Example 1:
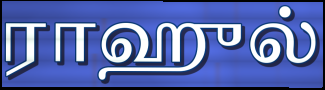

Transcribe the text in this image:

ராஹுல்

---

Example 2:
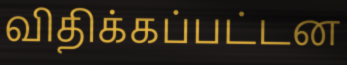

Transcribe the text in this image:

விதிக்கப்பட்டன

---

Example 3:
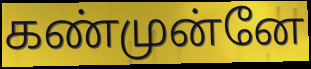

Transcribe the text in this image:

கண்முன்னே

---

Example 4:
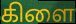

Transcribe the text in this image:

கிளை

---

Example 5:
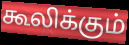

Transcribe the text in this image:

கூலிக்கும்